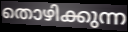
തൊഴിക്കുന്ന